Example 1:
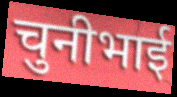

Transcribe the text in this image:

चुनीभाई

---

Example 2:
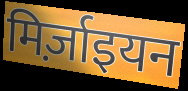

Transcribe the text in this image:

मिर्ज़ाइयन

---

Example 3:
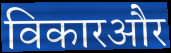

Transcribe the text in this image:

विकारऔर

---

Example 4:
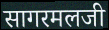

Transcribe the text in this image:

सागरमलजी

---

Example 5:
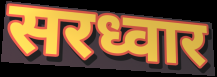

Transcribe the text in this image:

सरध्वार